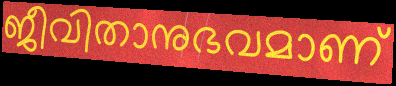
ജീവിതാനുഭവമാണ്